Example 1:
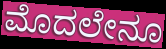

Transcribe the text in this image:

ಮೊದಲೇನೂ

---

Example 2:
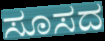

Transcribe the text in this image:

ಸೂಸದ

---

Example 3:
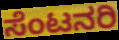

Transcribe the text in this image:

ಸೆಂಟನರಿ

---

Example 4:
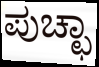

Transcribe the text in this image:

ಪುಚ್ಛಾ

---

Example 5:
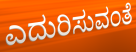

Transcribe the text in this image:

ಎದುರಿಸುವಂತೆ